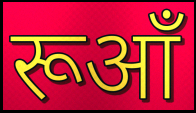
रूआँ